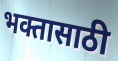
भक्तासाठी